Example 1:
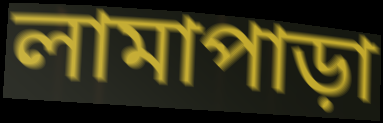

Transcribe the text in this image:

লামাপাড়া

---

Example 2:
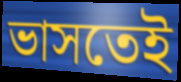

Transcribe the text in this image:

ভাসতেই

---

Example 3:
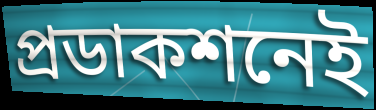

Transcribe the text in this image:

প্রডাকশনেই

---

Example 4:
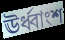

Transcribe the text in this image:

ঊর্ধ্বাংশ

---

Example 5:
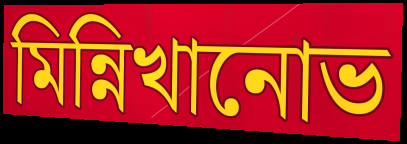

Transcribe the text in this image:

মিন্নিখানোভ